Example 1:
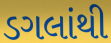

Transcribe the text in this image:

ડગલાંથી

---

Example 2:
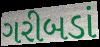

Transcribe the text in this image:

ગરીબડાં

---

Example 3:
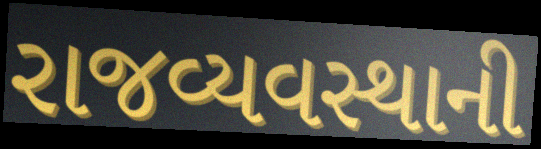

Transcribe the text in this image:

રાજવ્યવસ્થાની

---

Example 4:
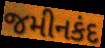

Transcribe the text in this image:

જમીનકંદ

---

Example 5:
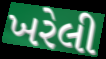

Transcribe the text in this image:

ખરેલી